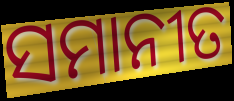
ସମାନୀତ